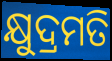
କ୍ଷୁଦ୍ରମତି